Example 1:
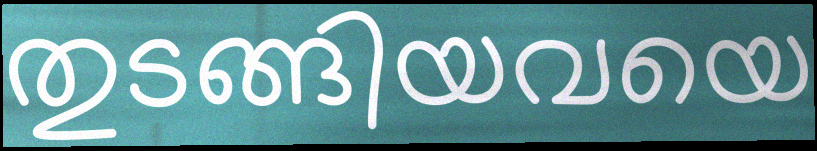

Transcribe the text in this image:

തുടങ്ങിയവയെ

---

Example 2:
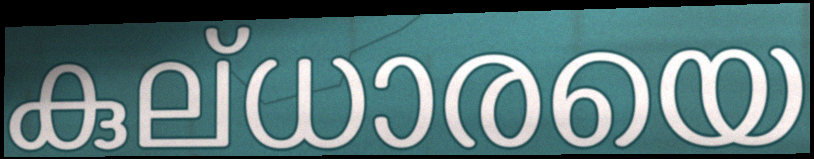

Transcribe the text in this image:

കുല്ധാരയെ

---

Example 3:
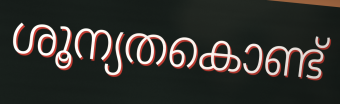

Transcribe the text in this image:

ശൂന്യതകൊണ്ട്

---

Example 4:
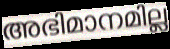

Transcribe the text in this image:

അഭിമാനമില്ല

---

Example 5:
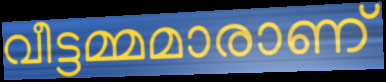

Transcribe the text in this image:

വീട്ടമ്മമാരാണ്